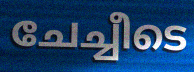
ചേച്ചീടെ